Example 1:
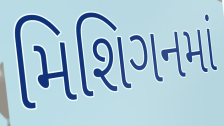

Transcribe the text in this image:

મિશિગનમાં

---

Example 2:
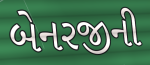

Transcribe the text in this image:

બેનરજીની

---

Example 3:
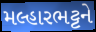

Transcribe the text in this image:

મલ્હારભટ્ટને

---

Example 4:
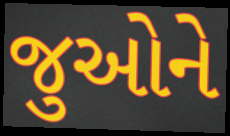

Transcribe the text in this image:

જુઓને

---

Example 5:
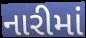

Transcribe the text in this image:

નારીમાં